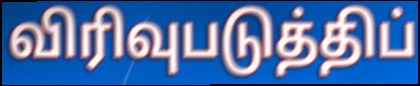
விரிவுபடுத்திப்